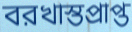
বরখাস্তপ্রাপ্ত